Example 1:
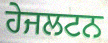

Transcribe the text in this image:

ਹੇਜਲਟਨ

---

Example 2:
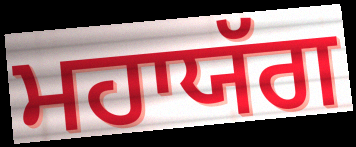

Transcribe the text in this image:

ਮਹਾਯੱਗ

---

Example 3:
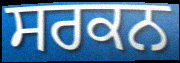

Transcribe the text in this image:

ਸਰਕਨ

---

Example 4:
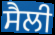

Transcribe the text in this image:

ਸੈਲੀ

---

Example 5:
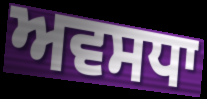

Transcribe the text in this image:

ਅਵਸਧਾ